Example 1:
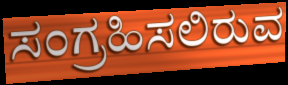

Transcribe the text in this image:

ಸಂಗ್ರಹಿಸಲಿರುವ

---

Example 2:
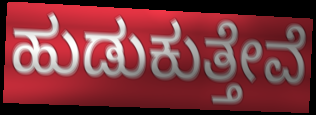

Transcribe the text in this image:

ಹುಡುಕುತ್ತೇವೆ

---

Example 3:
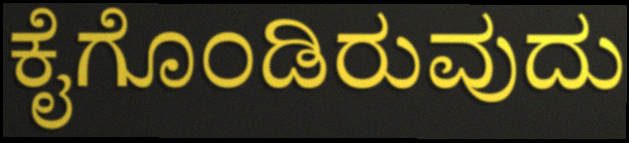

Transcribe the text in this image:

ಕೈಗೊಂಡಿರುವುದು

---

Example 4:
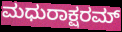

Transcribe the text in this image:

ಮಧುರಾಕ್ಷರಮ್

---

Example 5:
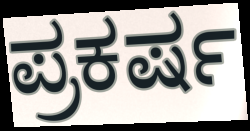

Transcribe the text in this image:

ಪ್ರಕರ್ಷ